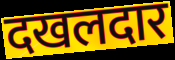
दखलदार